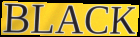
BLACK